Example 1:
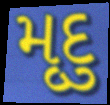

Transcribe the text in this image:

મૃદુ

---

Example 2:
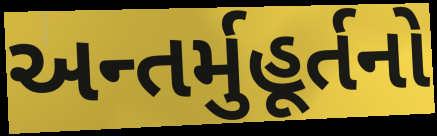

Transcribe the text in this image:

અન્તર્મુહૂર્તનો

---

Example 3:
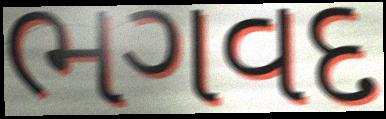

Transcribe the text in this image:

ભગવદ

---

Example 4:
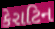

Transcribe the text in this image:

કેરાટિન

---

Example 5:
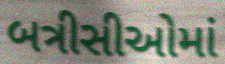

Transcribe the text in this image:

બત્રીસીઓમાં